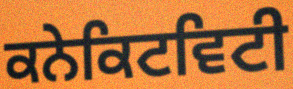
ਕਨੇਕਿਟਵਿਟੀ